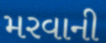
મરવાની